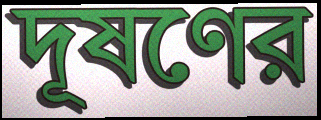
দূষণের